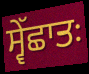
ਸ੍ਵੇੱਛਾਤਃ